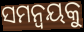
ସମନ୍ବୟକୁ